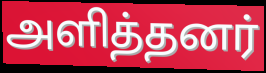
அளித்தனர்